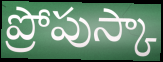
ప్రోపుస్కా